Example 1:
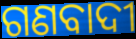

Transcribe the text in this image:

ଗଣବାଦୀ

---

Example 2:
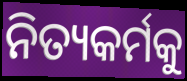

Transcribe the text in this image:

ନିତ୍ୟକର୍ମକୁ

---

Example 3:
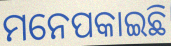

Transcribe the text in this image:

ମନେପକାଇଛି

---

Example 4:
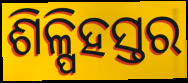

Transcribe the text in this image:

ଶିଳ୍ପିହସ୍ତର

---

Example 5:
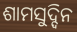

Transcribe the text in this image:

ଶାମସୁଦ୍ଦିନ